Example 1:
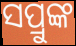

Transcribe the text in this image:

ସପ୍ରୁଙ୍କ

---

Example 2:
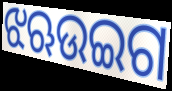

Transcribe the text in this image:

ଝଋଉଇଗ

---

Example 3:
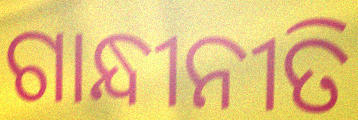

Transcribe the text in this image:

ଗାନ୍ଧୀନୀତି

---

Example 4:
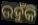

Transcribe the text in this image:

ଉହୁଁକି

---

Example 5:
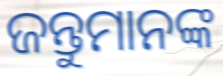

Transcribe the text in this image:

ଜନ୍ତୁମାନଙ୍କ